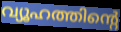
വ്യൂഹത്തിന്റെ